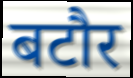
बटौर